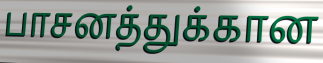
பாசனத்துக்கான